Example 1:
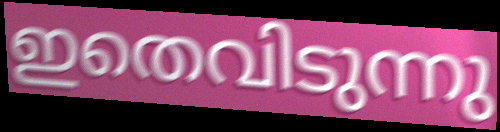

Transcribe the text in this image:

ഇതെവിടുന്നു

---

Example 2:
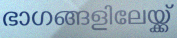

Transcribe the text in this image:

ഭാഗങ്ങളിലേയ്ക്ക്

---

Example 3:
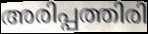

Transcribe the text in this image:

അരിപ്പത്തിരി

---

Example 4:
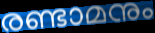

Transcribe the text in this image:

രണ്ടാമനും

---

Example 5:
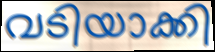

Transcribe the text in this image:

വടിയാക്കി